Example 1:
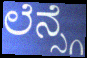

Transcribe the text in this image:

ಲೆನ್ಸ್ಗೆ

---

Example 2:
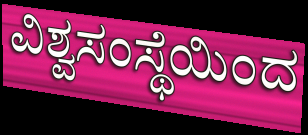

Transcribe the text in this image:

ವಿಶ್ವಸಂಸ್ಥೆಯಿಂದ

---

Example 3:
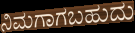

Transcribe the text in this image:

ನಿಮಗಾಗಬಹುದು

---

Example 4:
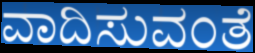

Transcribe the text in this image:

ವಾದಿಸುವಂತೆ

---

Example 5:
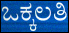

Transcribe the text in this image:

ಒಕ್ಕಲತಿ